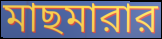
মাছমারার